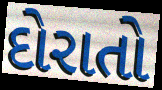
દોરાતો